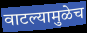
वाटल्यामुळेच